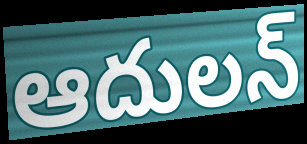
ఆదులన్